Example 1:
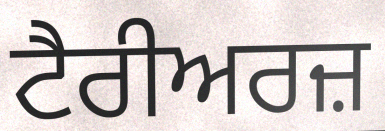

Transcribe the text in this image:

ਟੈਰੀਅਰਜ਼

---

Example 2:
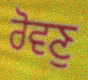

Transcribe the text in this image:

ਰੋਵਣੁ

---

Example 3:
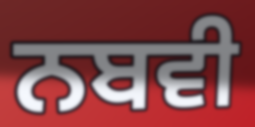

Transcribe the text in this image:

ਨਬਵੀ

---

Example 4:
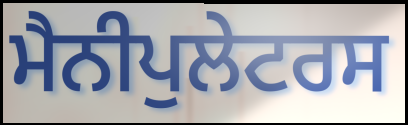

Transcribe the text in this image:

ਮੈਨੀਪੁਲੇਟਰਸ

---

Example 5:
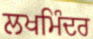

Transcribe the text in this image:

ਲਖਮਿੰਦਰ